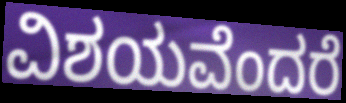
ವಿಶಯವೆಂದರೆ